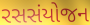
રસસંયોજન